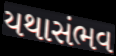
યથાસંભવ